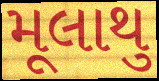
મૂલાથુ